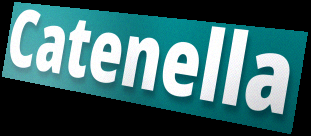
Catenella